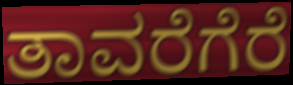
ತಾವರೆಗೆರೆ